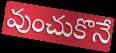
వుంచుకొనే